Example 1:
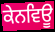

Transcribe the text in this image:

ਕੇਨਵਿਊ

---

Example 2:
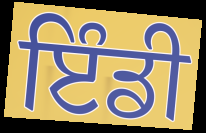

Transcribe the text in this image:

ਇੰਡੀ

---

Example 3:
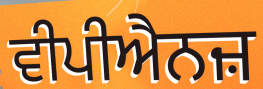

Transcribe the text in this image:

ਵੀਪੀਐਨਜ਼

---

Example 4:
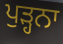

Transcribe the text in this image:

ਪੁੜ੍ਹਨਾ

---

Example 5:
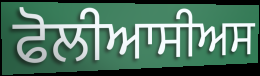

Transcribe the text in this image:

ਫੋਲੀਆਸੀਅਸ